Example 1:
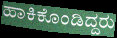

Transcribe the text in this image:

ಹಾಕಿಕೊಂಡಿದ್ದರು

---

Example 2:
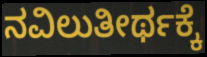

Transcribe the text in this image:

ನವಿಲುತೀರ್ಥಕ್ಕೆ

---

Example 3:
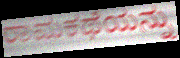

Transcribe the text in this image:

ರಾಮಕಥೆಯನ್ನು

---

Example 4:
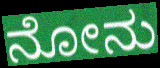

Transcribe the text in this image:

ನೋನು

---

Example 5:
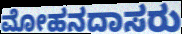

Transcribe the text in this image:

ಮೋಹನದಾಸರು